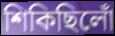
শিকিছিলোঁ